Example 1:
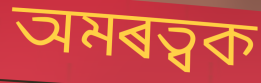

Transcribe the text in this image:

অমৰত্বক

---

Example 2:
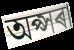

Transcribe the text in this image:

অপ্সৰা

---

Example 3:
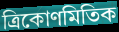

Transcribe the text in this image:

ত্ৰিকোণমিতিক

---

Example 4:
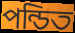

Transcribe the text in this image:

পন্ডিত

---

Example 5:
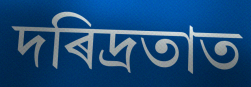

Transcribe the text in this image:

দৰিদ্ৰতাত